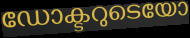
ഡോക്ടറുടെയോ